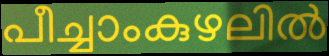
പീച്ചാംകുഴലിൽ